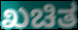
ಖಚಿತ